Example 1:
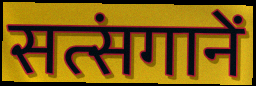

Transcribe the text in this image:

सत्संगानें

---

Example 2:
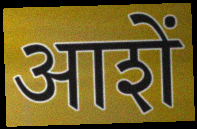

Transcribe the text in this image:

आशें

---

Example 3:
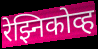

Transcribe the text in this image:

रेझ्निकोव्ह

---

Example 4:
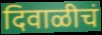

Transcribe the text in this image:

दिवाळीचं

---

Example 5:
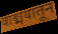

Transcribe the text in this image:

वाङ्मयातून